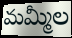
మమ్మీల